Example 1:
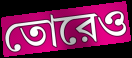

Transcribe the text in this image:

তোরেও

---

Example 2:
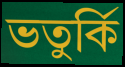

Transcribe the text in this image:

ভতুর্কি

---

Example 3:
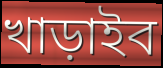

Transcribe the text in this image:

খাড়াইব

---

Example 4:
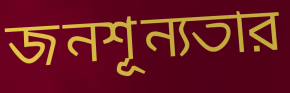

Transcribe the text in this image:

জনশূন্যতার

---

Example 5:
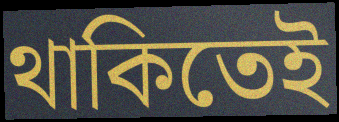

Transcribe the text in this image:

থাকিতেই